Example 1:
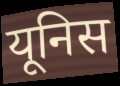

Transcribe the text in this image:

यूनिस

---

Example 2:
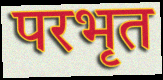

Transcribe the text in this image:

परभृत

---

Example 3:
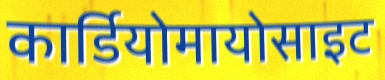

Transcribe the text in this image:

कार्डियोमायोसाइट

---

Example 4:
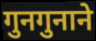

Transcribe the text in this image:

गुनगुनाने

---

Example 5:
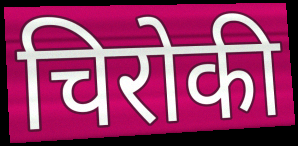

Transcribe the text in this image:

चिरोकी